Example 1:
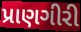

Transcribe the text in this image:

પ્રાણગીરી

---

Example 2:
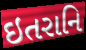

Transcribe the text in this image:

ઇતરાનિ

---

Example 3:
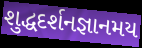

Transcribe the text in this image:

શુદ્ધદર્શનજ્ઞાનમય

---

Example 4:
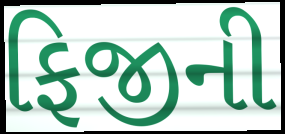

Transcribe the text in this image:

ફિજીની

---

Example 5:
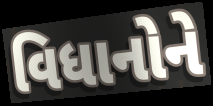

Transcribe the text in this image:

વિધાનોને